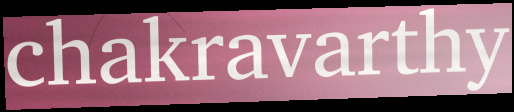
chakravarthy